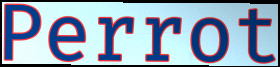
Perrot